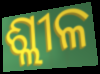
ଶ୍ଲୀଳ